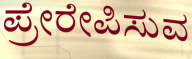
ಪ್ರೇರೇಪಿಸುವ